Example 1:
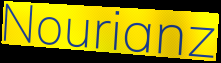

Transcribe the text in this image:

Nourianz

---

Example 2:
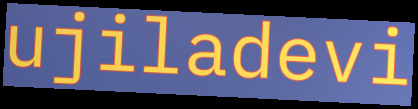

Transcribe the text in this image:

ujiladevi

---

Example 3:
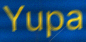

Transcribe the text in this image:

Yupa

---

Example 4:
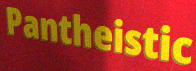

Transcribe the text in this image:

Pantheistic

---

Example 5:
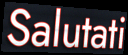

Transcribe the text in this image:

Salutati